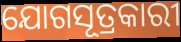
ଯୋଗସୂତ୍ରକାରୀ